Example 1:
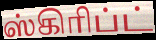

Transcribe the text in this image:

ஸ்கிரிப்ட்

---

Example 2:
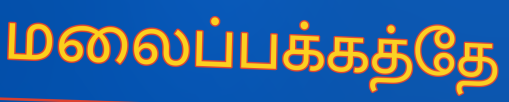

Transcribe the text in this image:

மலைப்பக்கத்தே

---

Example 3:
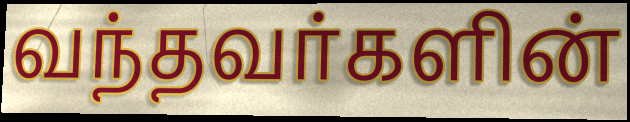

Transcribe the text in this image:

வந்தவர்களின்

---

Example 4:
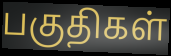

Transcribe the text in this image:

பகுதிகள்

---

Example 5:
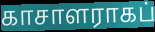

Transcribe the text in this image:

காசாளராகப்